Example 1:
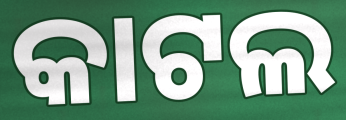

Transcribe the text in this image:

କାଟଲ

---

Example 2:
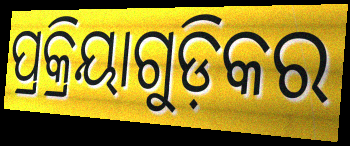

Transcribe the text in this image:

ପ୍ରକ୍ରିୟାଗୁଡ଼ିକର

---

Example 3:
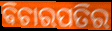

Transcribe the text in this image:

ବିଚାରପତିର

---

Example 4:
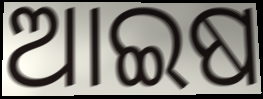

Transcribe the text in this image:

ଆଇଷ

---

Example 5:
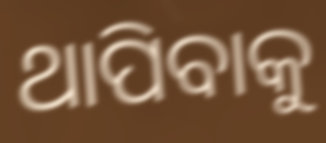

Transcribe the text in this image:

ଥାପିବାକୁ